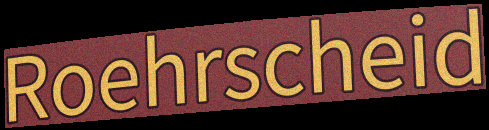
Roehrscheid